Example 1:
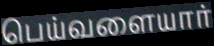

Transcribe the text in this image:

பெய்வளையார்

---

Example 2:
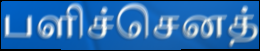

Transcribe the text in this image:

பளிச்செனத்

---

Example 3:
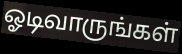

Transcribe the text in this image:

ஓடிவாருங்கள்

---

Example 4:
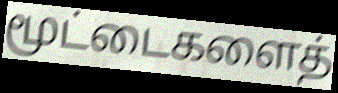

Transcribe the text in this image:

மூட்டைகளைத்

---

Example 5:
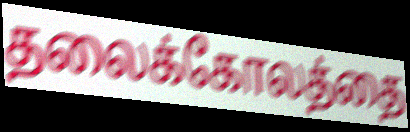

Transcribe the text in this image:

தலைக்கோலத்தை